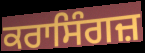
ਕਰਾਸਿੰਗਜ਼